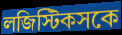
লজিস্টিকসকে